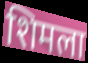
शिमला